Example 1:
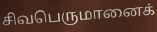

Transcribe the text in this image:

சிவபெருமானைக்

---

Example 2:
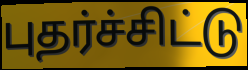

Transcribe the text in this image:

புதர்ச்சிட்டு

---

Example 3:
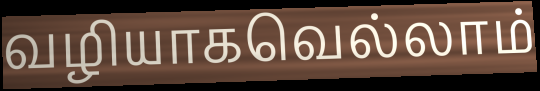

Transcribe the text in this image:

வழியாகவெல்லாம்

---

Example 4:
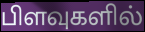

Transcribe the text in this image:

பிளவுகளில்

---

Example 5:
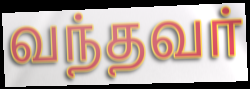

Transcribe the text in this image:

வந்தவர்